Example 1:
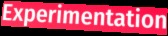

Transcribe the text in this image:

Experimentation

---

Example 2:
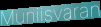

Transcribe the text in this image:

Muniisvaran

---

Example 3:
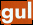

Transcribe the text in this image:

gul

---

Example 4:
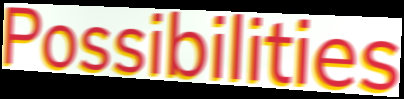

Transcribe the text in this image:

Possibilities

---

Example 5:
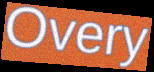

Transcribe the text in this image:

Overy